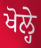
ਖੋਲ੍ਹੇ